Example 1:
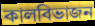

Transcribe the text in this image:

কালবিভাজন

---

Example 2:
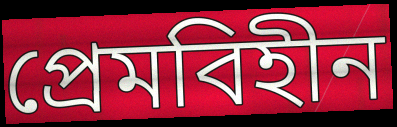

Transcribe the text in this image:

প্রেমবিহীন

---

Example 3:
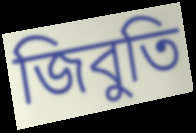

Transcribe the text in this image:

জিবুতি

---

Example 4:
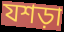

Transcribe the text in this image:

যশড়া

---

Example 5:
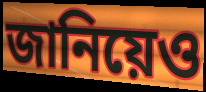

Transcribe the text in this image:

জানিয়েও